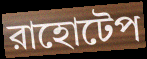
রাহোটেপ